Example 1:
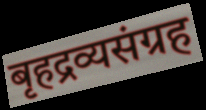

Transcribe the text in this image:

बृहद्रव्यसंग्रह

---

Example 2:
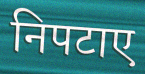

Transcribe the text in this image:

निपटाए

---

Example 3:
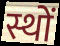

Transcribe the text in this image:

स्थों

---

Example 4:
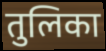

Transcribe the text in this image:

तुलिका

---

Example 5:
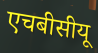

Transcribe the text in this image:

एचबीसीयू